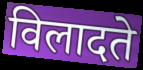
विलादते